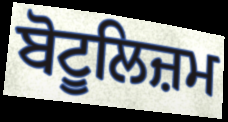
ਬੋਟੂਲਿਜ਼ਮ